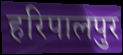
हरिपालपुर